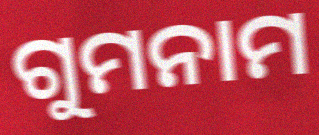
ଗୁମନାମ